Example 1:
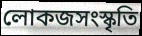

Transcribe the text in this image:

লোকজসংস্কৃতি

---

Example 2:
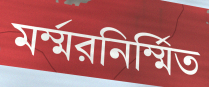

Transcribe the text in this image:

মর্ম্মরনির্ম্মিত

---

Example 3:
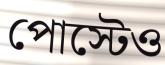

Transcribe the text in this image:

পোস্টেও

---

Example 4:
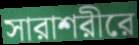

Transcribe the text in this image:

সারাশরীরে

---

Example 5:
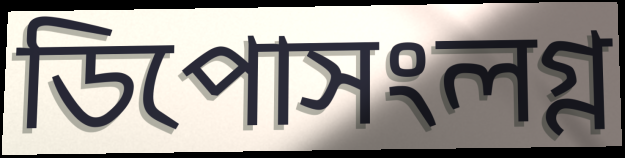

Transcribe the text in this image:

ডিপোসংলগ্ন